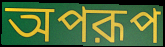
অপরূপ